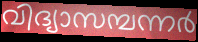
വിദ്യാസമ്പന്നർ